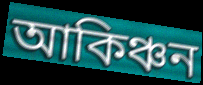
আকিঞ্চন